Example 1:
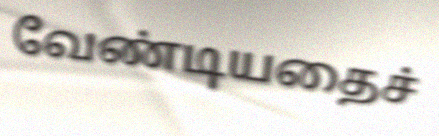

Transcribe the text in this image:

வேண்டியதைச்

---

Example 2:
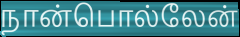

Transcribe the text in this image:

நான்பொல்லேன்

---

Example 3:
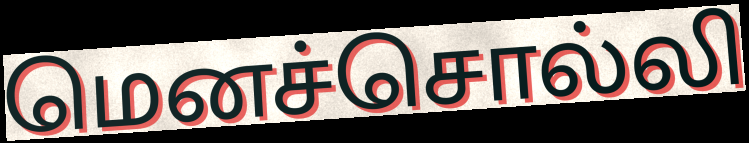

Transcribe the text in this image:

மெனச்சொல்லி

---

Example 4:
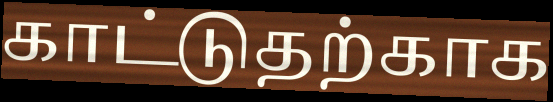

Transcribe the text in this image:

காட்டுதற்காக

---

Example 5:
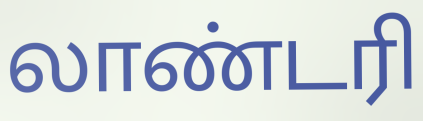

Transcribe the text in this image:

லாண்டரி